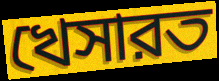
খেসারত